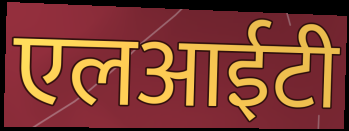
एलआईटी